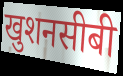
खुशनसीबी